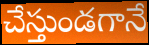
చేస్తుండగానే